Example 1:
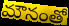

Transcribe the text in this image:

మౌనంతో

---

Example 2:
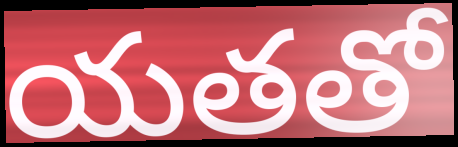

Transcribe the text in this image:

యతతో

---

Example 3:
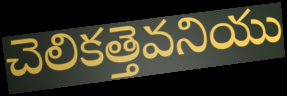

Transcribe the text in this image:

చెలికత్తెవనియు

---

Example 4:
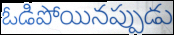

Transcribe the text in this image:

ఓడిపోయినప్పుడు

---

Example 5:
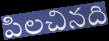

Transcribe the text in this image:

పిలచినది